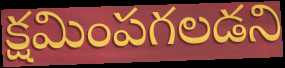
క్షమింపగలడని